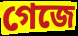
গেজে